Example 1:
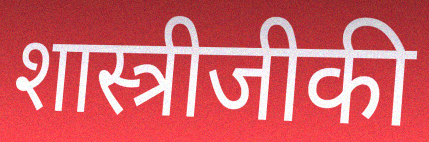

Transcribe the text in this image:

शास्त्रीजीकी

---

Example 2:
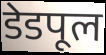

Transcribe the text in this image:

डेडपूल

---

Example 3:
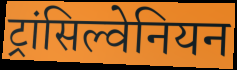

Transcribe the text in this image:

ट्रांसिल्वेनियन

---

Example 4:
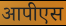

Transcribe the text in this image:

आपीएस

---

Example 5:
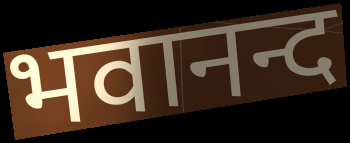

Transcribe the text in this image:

भवानन्द